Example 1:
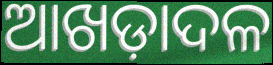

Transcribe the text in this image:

ଆଖଡ଼ାଦଳ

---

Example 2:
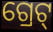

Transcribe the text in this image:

ଗ୍ରେଟ୍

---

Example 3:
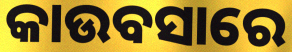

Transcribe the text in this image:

କାଉବସାରେ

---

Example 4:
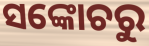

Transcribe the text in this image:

ସଙ୍କୋଚରୁ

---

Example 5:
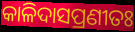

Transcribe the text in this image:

କାଳିଦାସପ୍ରଣୀତଃ